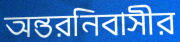
অন্তরনিবাসীর